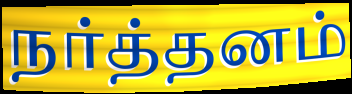
நர்த்தனம்